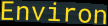
Environ